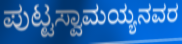
ಪುಟ್ಟಸ್ವಾಮಯ್ಯನವರ